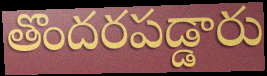
తొందరపడ్డారు